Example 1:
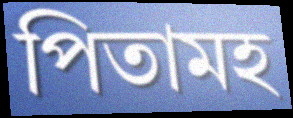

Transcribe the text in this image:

পিতামহ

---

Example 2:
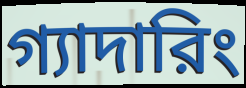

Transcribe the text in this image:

গ্যাদারিং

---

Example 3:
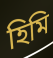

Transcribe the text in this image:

হিমি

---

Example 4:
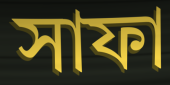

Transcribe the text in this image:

সাফা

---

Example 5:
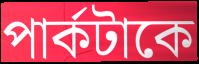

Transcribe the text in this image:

পার্কটাকে